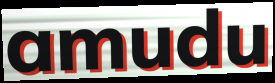
amudu